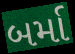
બર્મા